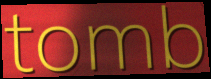
tomb